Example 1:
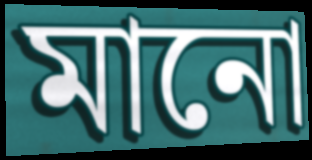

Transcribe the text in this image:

মানো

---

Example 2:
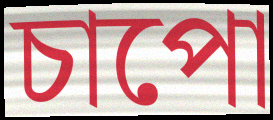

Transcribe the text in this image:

চাপো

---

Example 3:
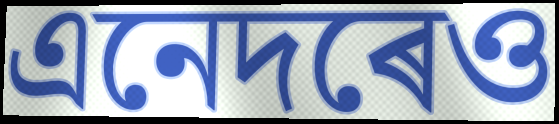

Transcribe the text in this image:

এনেদৰেও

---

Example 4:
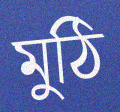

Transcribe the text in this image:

মুঠি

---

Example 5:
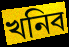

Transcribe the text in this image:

খনিব